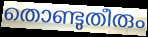
തൊണ്ടുതീരും